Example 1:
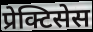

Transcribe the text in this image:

प्रेक्टिसेस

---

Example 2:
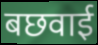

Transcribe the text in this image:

बछवाई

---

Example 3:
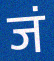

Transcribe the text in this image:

जं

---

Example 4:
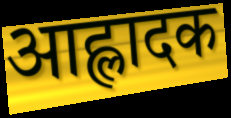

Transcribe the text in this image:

आह्लादक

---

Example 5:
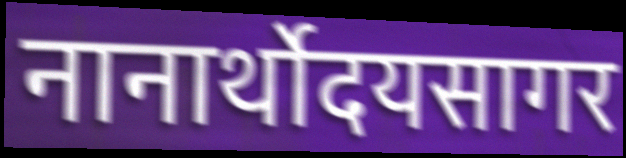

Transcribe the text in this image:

नानार्थोदयसागर